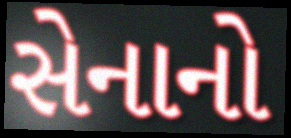
સેનાનો